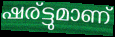
ഷര്ട്ടുമാണ്